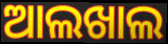
ଆଲଖାଲ